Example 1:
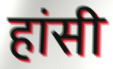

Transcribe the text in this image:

हांसी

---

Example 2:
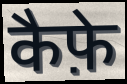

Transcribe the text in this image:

कैफ़े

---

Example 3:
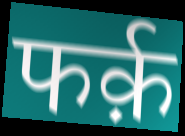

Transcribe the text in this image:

फर्क़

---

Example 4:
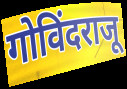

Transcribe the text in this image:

गोविंदराजू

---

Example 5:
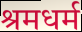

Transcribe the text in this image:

श्रमधर्म